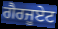
ਗੈਰਜੂਏਟ